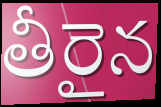
తీరైన